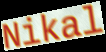
Nikal